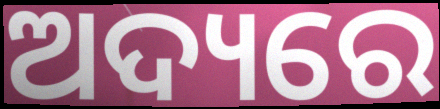
ଅଦ୍ୟରେ